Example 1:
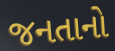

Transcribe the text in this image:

જનતાનો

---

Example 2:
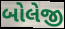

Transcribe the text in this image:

બોલેજી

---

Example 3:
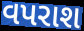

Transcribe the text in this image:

વપરાશ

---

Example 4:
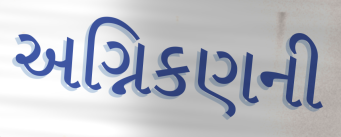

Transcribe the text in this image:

અગ્નિકણની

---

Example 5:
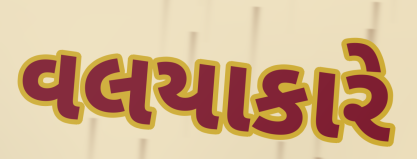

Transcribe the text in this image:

વલયાકારે